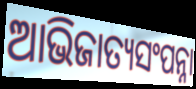
ଆଭିଜାତ୍ୟସଂପନ୍ନା